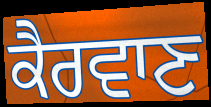
ਕੈਰਵਾਣ